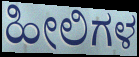
ಹೀಲಿಗಳ